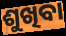
ଶୁଖିବା